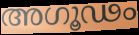
അഗൂഢം